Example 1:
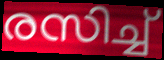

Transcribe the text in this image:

രസിച്ച്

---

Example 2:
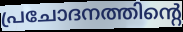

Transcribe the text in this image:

പ്രചോദനത്തിന്റെ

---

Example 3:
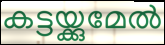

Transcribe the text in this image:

കട്ടയ്ക്കുമേൽ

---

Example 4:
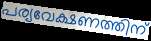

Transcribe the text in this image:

പര്യവേക്ഷണത്തിന്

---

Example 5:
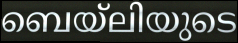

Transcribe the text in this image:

ബെയ്ലിയുടെ